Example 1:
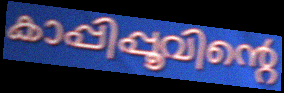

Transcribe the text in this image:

കാപ്പിപ്പൂവിന്റെ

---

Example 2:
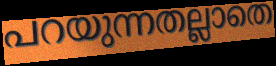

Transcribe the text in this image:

പറയുന്നതല്ലാതെ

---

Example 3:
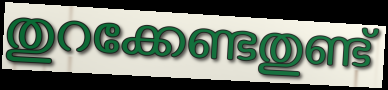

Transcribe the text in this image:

തുറക്കേണ്ടതുണ്ട്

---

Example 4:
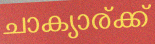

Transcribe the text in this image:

ചാക്യാര്ക്ക്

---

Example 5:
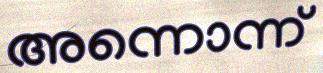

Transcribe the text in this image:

അന്നൊന്ന്